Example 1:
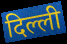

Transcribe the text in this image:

दिल्ली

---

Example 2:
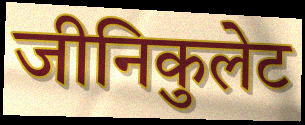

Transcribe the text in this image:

जीनिकुलेट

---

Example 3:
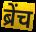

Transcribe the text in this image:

ब्रेंच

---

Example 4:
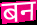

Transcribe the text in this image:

बन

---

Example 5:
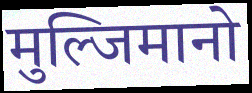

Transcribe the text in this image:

मुल्जिमानो